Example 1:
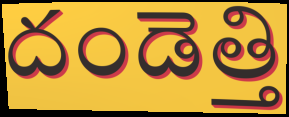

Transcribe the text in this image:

దండెత్తి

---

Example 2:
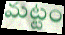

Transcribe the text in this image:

మట్టం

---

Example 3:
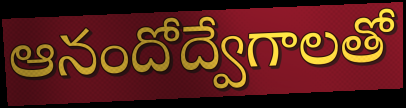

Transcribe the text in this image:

ఆనందోద్వేగాలతో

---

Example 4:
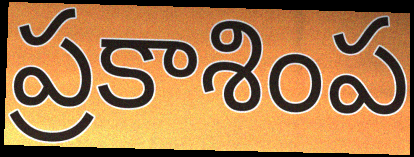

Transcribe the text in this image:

ప్రకాశింప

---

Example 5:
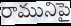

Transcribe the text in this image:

రామునిపై